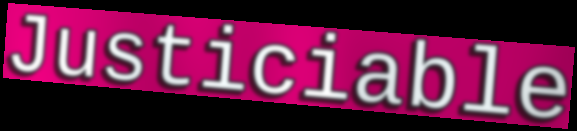
Justiciable